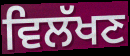
ਵਿਲੱਖਣ